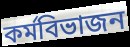
কর্মবিভাজন